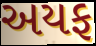
અયફ